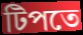
টিপতে